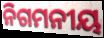
ନିଗମନୀୟ